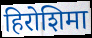
हिरोशिमा